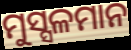
ମୁସ୍ସଳମାନ